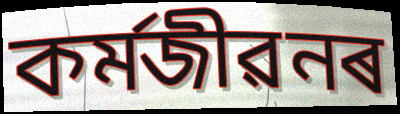
কৰ্মজীৱনৰ